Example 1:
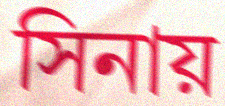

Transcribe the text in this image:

সিনায়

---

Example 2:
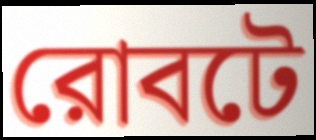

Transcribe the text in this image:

রোবটে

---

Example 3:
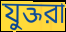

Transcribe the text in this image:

যুক্তরা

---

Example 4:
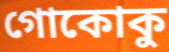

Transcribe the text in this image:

গোকোকু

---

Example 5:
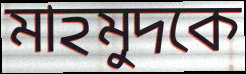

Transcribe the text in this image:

মাহমুদকে